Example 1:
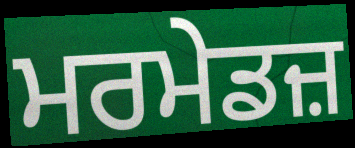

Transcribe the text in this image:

ਮਰਮੇਡਜ਼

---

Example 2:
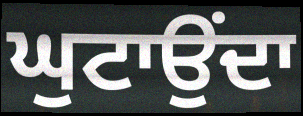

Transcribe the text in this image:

ਘੁਟਾਉਂਦਾ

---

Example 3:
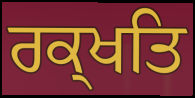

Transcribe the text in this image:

ਰਕ੍ਖਤਿ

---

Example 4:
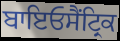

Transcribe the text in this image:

ਬਾਇਓਸੈਂਟ੍ਰਿਕ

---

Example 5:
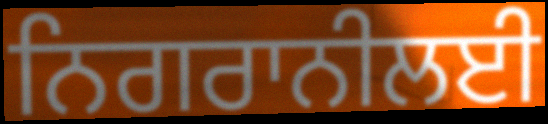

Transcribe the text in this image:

ਨਿਗਰਾਨੀਲਈ